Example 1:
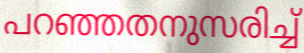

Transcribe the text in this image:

പറഞ്ഞതനുസരിച്ച്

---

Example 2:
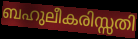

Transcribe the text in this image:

ബഹുലീകരിസ്സതി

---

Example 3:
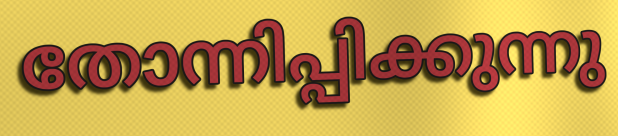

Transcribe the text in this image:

തോന്നിപ്പിക്കുന്നു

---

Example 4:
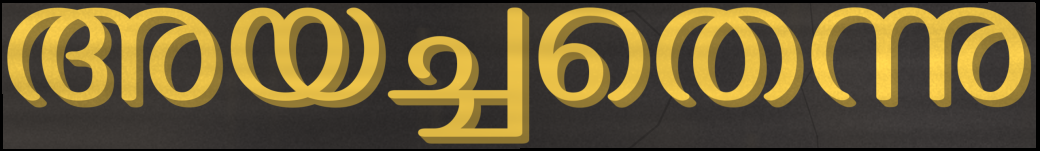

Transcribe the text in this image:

അയച്ചതെന്നു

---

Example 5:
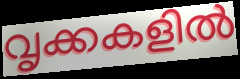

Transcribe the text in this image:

വൃക്കകളിൽ